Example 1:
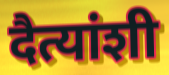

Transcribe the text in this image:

दैत्यांशी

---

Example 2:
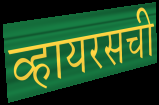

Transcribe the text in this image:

व्हायरसची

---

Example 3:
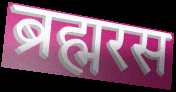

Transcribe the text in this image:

ब्रह्मरस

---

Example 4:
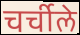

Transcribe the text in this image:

चर्चीले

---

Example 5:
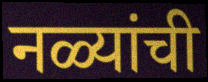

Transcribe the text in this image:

नळ्यांची